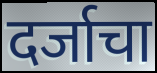
दर्जाचा